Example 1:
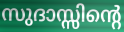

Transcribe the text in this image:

സുദാസ്സിന്റെ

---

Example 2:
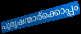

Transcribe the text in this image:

പുരുഷന്മാര്ക്കൊപ്പം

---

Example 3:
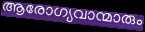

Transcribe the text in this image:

ആരോഗ്യവാന്മാരും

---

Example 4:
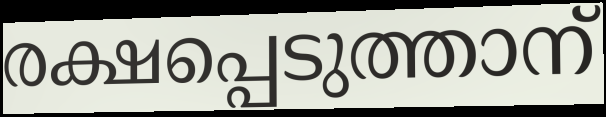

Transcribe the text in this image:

രക്ഷപ്പെടുത്താന്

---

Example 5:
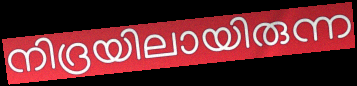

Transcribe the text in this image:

നിദ്രയിലായിരുന്ന